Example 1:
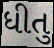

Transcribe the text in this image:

ધીતુ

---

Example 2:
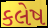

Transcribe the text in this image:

કલેષ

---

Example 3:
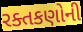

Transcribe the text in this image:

રક્તકણોની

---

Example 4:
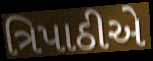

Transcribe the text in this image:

ત્રિપાઠીએ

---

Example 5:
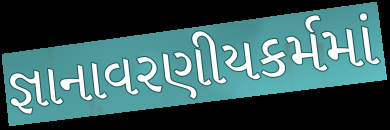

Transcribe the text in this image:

જ્ઞાનાવરણીયકર્મમાં